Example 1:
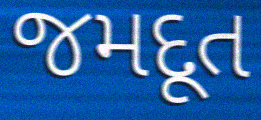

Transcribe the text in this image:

જમદૂત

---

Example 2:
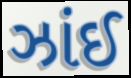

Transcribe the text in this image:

ઝાંઈ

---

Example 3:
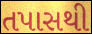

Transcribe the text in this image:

તપાસથી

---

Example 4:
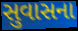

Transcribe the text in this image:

સુવાસના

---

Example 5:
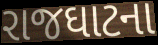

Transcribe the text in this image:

રાજઘાટના